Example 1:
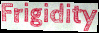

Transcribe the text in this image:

Frigidity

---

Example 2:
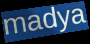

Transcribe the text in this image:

madya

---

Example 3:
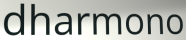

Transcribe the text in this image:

dharmono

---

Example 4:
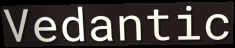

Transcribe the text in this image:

Vedantic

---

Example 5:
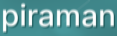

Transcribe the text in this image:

piraman